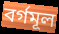
বৰ্গমূল